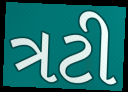
ત્રટી